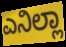
ಎನಿಲ್ಲಾ